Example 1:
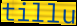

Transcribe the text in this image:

tillu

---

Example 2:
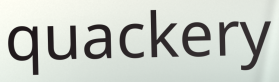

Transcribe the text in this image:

quackery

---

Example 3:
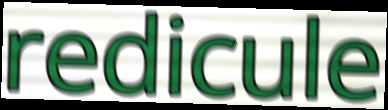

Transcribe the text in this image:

redicule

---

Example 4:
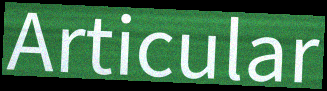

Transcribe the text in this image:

Articular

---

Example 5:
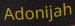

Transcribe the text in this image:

Adonijah